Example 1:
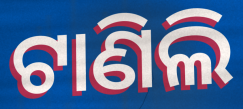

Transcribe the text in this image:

ଟାଣିଲି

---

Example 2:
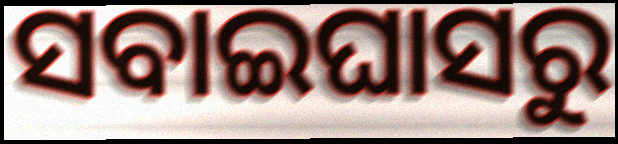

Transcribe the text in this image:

ସବାଇଘାସରୁ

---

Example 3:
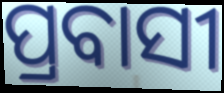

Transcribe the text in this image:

ପ୍ରବାସୀ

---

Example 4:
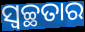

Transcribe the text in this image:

ସ୍ଵଚ୍ଛତାର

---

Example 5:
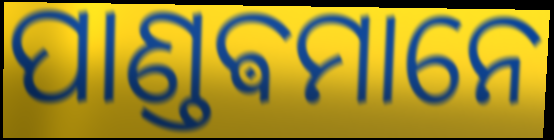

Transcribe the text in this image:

ପାଣ୍ଡଵମାନେ